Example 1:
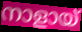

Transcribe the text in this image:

നാളായ്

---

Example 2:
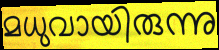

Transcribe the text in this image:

മധുവായിരുന്നു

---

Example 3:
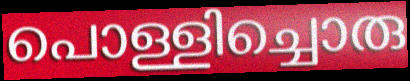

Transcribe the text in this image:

പൊള്ളിച്ചൊരു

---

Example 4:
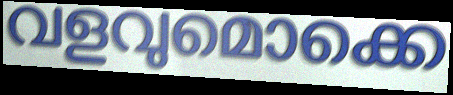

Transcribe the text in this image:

വളവുമൊക്കെ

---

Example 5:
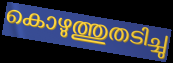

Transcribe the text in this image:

കൊഴുത്തുതടിച്ചു